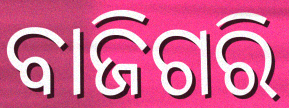
ବାଜିଗରି